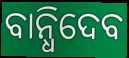
ବାନ୍ଧିଦେବ